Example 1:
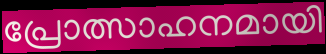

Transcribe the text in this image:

പ്രോത്സാഹനമായി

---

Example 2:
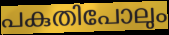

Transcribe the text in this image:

പകുതിപോലും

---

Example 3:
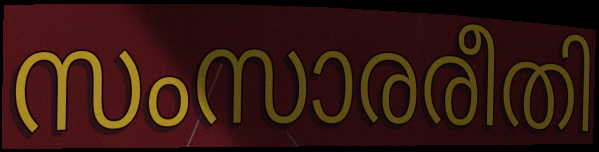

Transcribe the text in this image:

സംസാരരീതി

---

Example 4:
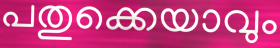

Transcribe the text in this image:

പതുക്കെയാവും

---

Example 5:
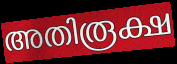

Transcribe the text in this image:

അതിരൂക്ഷ